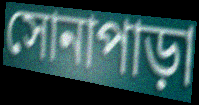
সোনাপাড়া